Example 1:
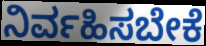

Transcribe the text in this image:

ನಿರ್ವಹಿಸಬೇಕೆ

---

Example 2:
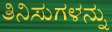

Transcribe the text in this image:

ತಿನಿಸುಗಳನ್ನು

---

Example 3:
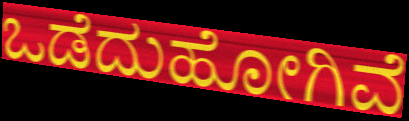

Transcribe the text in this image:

ಒಡೆದುಹೋಗಿವೆ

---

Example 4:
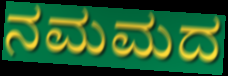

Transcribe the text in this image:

ನಮಮದ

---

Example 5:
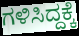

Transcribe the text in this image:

ಗಳಿಸಿದ್ದಕ್ಕೆ